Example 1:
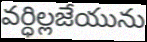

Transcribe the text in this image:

వర్ధిల్లజేయును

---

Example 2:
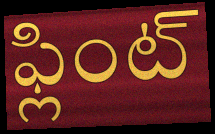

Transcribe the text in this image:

ఫ్లింట్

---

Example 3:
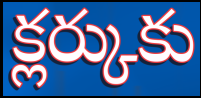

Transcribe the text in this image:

క్లర్కుకు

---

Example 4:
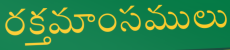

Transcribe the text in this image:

రక్తమాంసములు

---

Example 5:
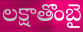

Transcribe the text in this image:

లక్షాతొంబై